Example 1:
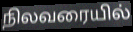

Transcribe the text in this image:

நிலவரையில்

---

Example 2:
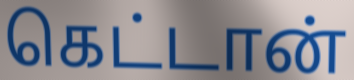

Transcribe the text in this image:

கெட்டான்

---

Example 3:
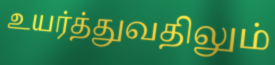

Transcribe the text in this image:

உயர்த்துவதிலும்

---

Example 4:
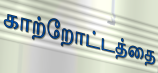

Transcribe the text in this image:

காற்றோட்டத்தை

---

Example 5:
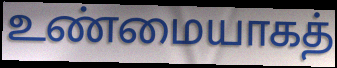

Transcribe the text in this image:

உண்மையாகத்